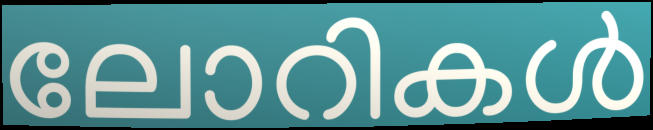
ലോറികൾ